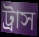
ট্রাস